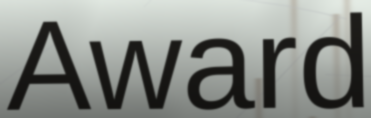
Award